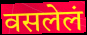
वसलेलं